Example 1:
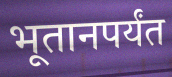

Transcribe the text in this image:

भूतानपर्यंत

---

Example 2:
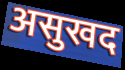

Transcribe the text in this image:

असुखद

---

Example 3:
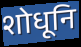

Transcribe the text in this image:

शोधूनि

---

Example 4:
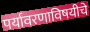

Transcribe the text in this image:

पर्यावरणाविषयीचे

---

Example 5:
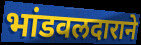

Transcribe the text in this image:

भांडवलदाराने